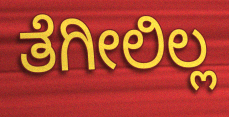
ತೆಗೀಲಿಲ್ಲ